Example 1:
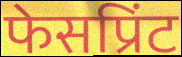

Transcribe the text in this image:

फेसप्रिंट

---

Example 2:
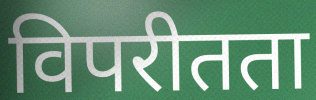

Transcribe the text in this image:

विपरीतता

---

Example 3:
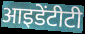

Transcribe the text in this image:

आइडेंटीटी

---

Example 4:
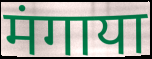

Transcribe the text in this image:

मंगाया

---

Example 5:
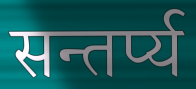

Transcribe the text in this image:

सन्तर्प्य